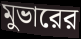
মুভারের